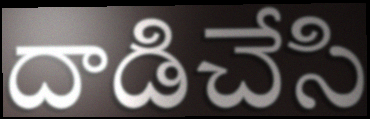
దాడిచేసి